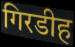
गिरडीह